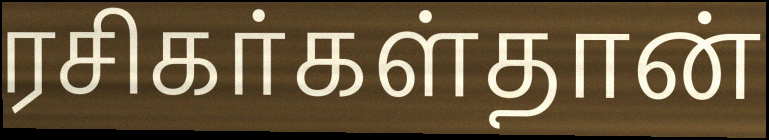
ரசிகர்கள்தான்